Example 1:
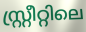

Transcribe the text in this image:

സ്റ്റ്രീറ്റിലെ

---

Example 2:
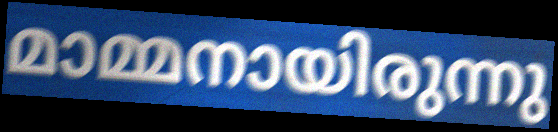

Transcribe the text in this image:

മാമ്മനായിരുന്നു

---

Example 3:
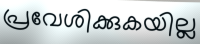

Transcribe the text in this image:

പ്രവേശിക്കുകയില്ല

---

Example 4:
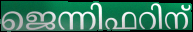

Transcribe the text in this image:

ജെന്നിഫറിന്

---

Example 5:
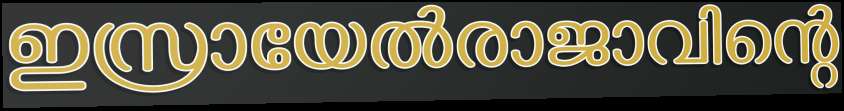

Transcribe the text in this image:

ഇസ്രായേൽരാജാവിന്റെ